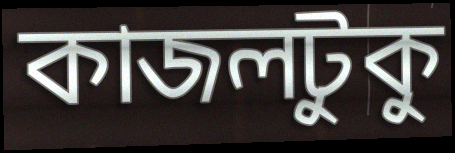
কাজলটুকু